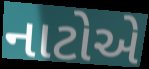
નાટોએ